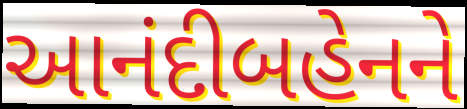
આનંદીબહેનને